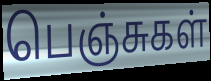
பெஞ்சுகள்